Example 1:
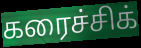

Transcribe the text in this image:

கரைச்சிக்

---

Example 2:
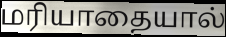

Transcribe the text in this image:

மரியாதையால்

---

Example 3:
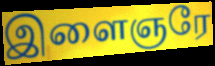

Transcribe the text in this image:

இளைஞரே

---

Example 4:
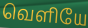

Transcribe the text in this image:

வெளியே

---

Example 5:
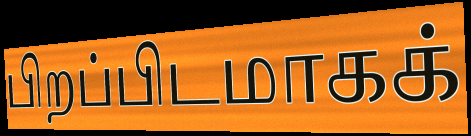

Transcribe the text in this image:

பிறப்பிடமாகக்